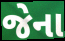
જેના